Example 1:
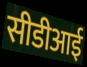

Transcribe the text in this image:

सीडीआई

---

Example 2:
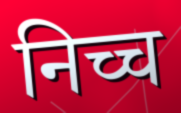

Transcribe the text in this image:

निच्च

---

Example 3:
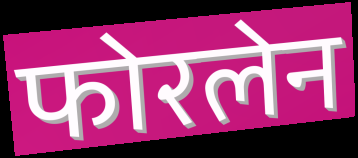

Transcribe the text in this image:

फोरलेन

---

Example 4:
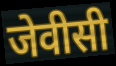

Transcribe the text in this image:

जेवीसी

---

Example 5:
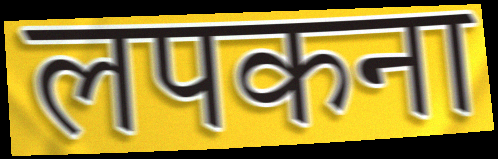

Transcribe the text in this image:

लपकना